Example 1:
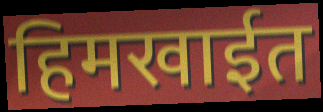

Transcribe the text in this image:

हिमखाईत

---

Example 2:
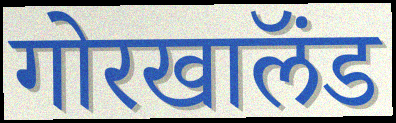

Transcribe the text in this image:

गोरखालॅंड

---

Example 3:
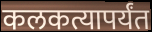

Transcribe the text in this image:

कलकत्यापर्यंत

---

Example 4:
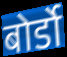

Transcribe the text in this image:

बोर्डो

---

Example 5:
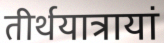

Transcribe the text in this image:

तीर्थयात्रायां